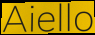
Aiello